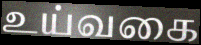
உய்வகை